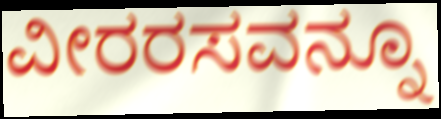
ವೀರರಸವನ್ನೂ